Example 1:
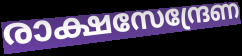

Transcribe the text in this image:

രാക്ഷസേന്ദ്രേണ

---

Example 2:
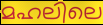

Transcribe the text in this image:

മഹലിലെ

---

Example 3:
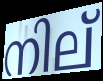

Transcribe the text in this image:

നില്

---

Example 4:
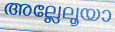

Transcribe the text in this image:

അല്ലേലൂയാ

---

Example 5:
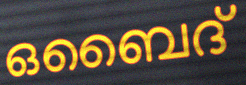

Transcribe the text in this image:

ഒബൈദ്